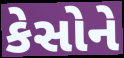
કેસોને